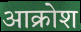
आक्रोश